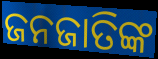
ଜନଜାତିଙ୍କ